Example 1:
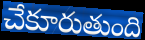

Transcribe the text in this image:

చేకూరుతుంది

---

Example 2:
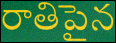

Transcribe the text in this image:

రాతిపైన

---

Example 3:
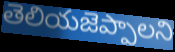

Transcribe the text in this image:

తెలియజెప్పాలని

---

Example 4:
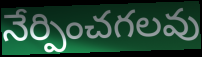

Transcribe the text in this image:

నేర్పించగలవు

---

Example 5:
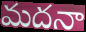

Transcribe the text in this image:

మదనా